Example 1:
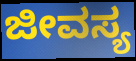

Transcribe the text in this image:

ಜೀವಸ್ಯ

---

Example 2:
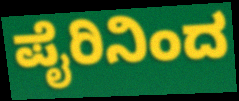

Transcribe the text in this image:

ಪೈರಿನಿಂದ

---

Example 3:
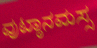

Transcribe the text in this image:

ವುಟ್ಠಾನಮಸ್ಸ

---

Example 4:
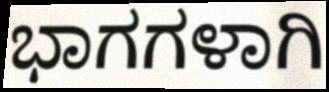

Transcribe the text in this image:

ಭಾಗಗಳಾಗಿ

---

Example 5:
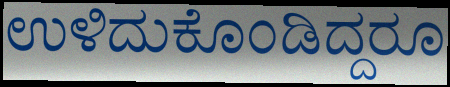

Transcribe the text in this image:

ಉಳಿದುಕೊಂಡಿದ್ದರೂ